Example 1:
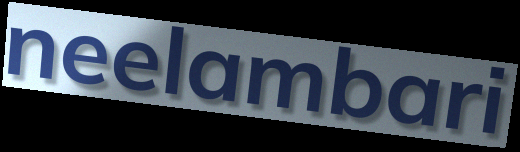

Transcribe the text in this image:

neelambari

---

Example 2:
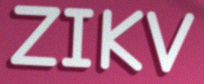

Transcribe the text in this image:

ZIKV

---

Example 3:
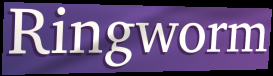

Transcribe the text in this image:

Ringworm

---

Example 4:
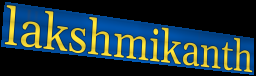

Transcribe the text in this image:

lakshmikanth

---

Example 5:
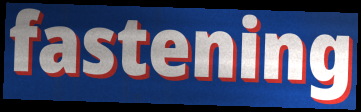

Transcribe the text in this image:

fastening